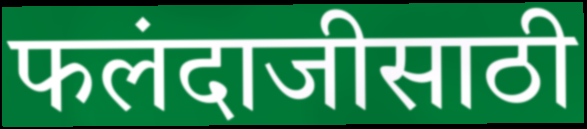
फलंदाजीसाठी